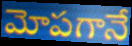
మోపగానే